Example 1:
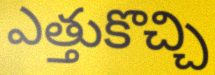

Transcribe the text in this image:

ఎత్తుకొచ్చి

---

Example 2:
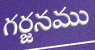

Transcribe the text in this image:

గర్జనము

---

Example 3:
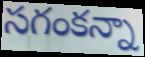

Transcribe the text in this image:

సగంకన్నా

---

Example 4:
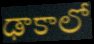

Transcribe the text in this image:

ఢాకాలో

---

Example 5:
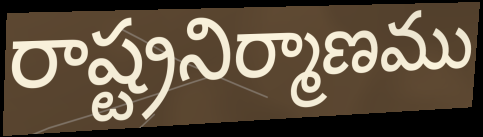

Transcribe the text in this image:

రాష్ట్రనిర్మాణము